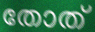
തോത്